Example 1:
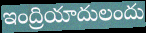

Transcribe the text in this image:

ఇంద్రియాదులందు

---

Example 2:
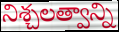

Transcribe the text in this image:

నిశ్చలత్వాన్ని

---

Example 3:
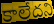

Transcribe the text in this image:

కాలేదని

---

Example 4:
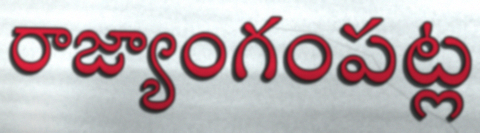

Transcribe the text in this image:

రాజ్యాంగంపట్ల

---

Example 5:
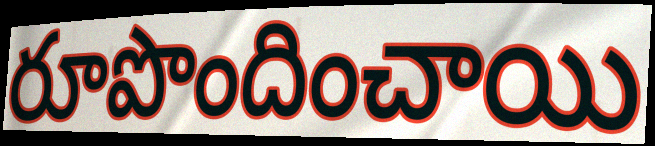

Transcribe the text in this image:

రూపొందించాయి